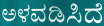
ಅಳವಡಿಸಿದೆ